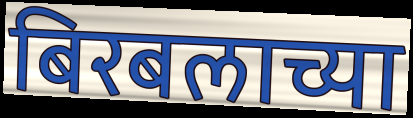
बिरबलाच्या